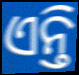
ଏନ୍ତି